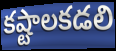
కష్టాలకడలి